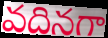
వదినగా